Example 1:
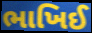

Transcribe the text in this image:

ભાખિઈ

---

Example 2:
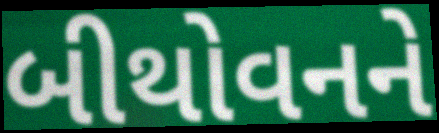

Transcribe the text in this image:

બીથોવનને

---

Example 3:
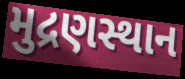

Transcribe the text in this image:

મુદ્રણસ્થાન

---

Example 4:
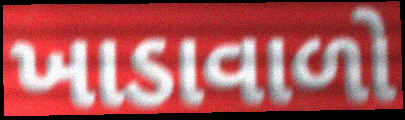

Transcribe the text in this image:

ખાડાવાળો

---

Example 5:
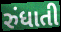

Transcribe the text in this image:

રુંધાતી